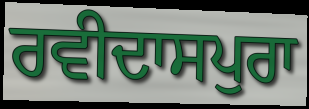
ਰਵੀਦਾਸਪੁਰਾ